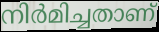
നിർമിച്ചതാണ്